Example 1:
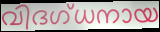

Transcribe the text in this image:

വിദഗ്ധനായ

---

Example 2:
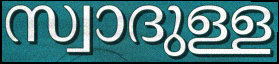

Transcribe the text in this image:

സ്വാദുള്ള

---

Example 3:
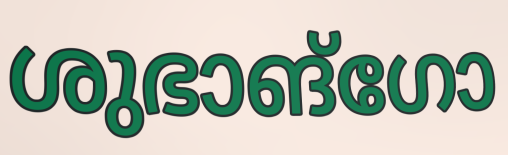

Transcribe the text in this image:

ശുഭാങ്ഗോ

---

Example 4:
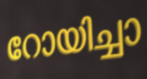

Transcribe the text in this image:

റോയിച്ചാ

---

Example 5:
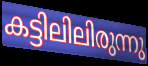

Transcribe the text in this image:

കട്ടിലിലിരുന്നു